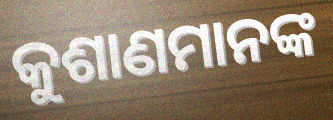
କୁଶାଣମାନଙ୍କ